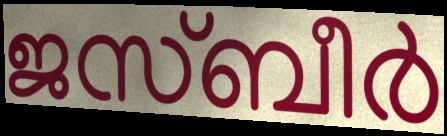
ജസ്ബീർ